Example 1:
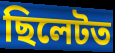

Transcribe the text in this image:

ছিলেটত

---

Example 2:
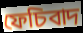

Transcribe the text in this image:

ফেচিবাদ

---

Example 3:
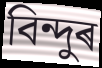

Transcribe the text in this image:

বিন্দুৰ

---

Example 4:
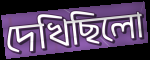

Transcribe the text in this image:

দেখিছিলো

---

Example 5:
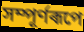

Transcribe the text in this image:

সম্পূৰ্ণৰূপে